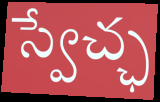
స్వేచ్ఛ